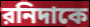
রনিদাকে